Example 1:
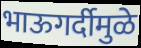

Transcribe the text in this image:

भाऊगर्दीमुळे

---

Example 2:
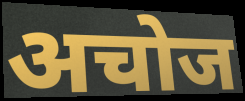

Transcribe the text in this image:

अचोज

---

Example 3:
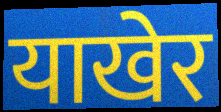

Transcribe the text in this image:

याखेर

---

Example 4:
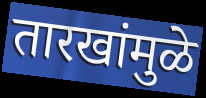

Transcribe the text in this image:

तारखांमुळे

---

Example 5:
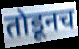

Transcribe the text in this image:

तोडूनच